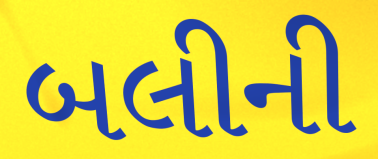
બલીની